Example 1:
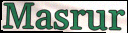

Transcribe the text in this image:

Masrur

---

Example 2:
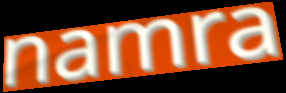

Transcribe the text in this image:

namra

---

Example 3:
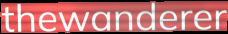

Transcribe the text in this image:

thewanderer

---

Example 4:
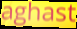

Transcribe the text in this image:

aghast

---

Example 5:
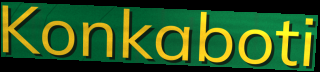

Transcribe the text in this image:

Konkaboti